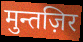
मुन्तज़िर